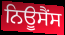
ਨਿਊਸੈਂਸ